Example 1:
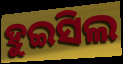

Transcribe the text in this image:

ହୁଇସିଲ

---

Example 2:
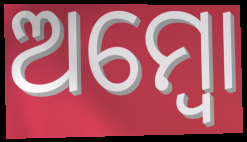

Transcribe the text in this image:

ଅମ୍ୱୋ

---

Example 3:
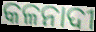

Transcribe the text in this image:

କଳନାଦୀ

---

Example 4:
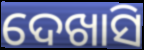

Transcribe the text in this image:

ଦେଖାସି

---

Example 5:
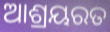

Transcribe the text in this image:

ଆଶ୍ରୟରତ